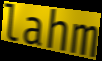
lahm